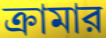
ক্রামার